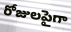
రోజులపైగా